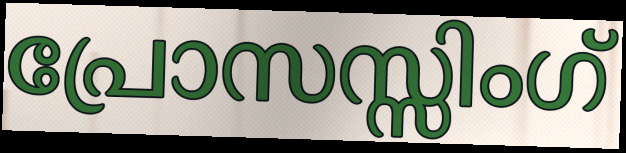
പ്രോസസ്സിംഗ്